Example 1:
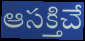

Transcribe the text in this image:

ఆసక్తిచే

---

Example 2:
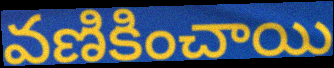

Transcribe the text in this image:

వణికించాయి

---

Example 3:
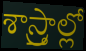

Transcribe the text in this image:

శాస్ర్తాల్లో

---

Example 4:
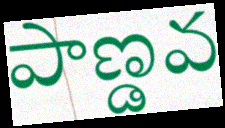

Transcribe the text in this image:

పాణ్డవ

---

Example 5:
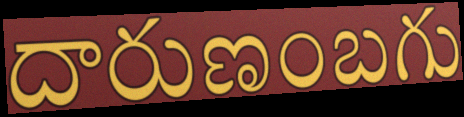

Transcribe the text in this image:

దారుణంబగు